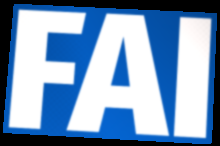
FAI